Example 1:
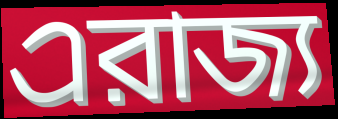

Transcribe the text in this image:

এরাজ্য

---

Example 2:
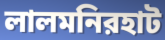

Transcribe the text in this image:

লালমনিরহাট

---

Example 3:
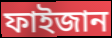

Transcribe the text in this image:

ফাইজান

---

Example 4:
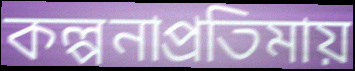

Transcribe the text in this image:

কল্পনাপ্রতিমায়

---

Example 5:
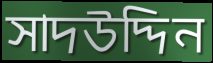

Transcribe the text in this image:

সাদউদ্দিন